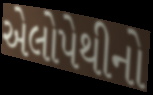
એલોપેથીનો